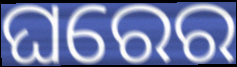
ଘରେର